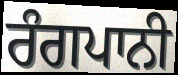
ਰੰਗਪਾਨੀ